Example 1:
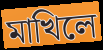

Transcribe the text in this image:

মাখিলে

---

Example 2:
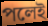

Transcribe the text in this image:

পলেই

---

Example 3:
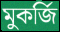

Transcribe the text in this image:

মুকর্জি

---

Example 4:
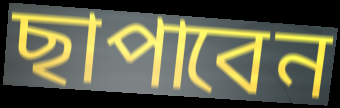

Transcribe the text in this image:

ছাপাবেন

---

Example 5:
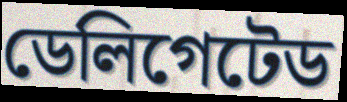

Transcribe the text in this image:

ডেলিগেটেড